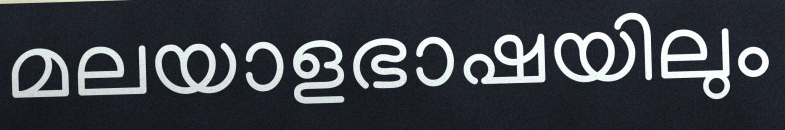
മലയാളഭാഷയിലും